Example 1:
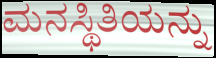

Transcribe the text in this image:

ಮನಸ್ಥಿತಿಯನ್ನು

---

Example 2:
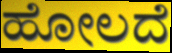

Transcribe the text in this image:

ಹೋಲದೆ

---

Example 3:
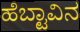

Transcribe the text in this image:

ಹೆಬ್ಟಾವಿನ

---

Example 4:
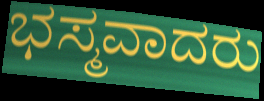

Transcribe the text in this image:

ಭಸ್ಮವಾದರು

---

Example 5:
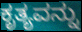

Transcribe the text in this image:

ಕೃತ್ಯವನ್ನು